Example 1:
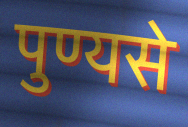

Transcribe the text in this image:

पुण्यसे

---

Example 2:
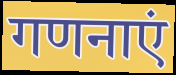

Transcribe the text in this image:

गणनाएं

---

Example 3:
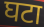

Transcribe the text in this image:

घटा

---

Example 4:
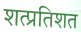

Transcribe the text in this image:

शत्प्रतिशत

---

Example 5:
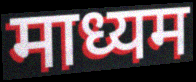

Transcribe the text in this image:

माध्यम